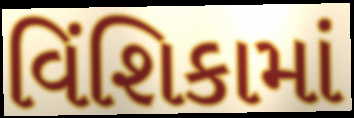
વિંશિકામાં